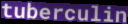
tuberculin